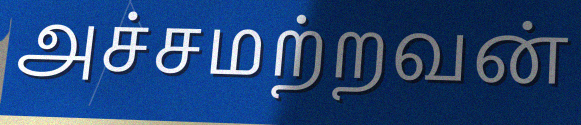
அச்சமற்றவன்